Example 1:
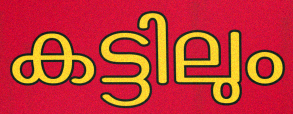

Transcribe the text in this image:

കട്ടിലും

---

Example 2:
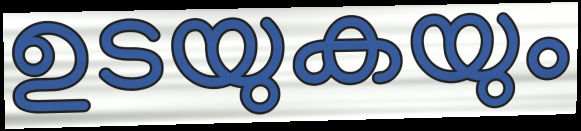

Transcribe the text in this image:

ഉടയുകയും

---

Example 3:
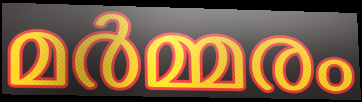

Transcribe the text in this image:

മർമ്മരം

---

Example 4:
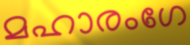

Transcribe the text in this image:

മഹാരംഗേ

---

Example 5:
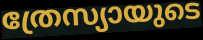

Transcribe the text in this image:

ത്രേസ്യായുടെ